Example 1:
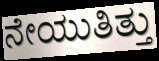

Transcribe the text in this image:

ನೇಯುತಿತ್ತು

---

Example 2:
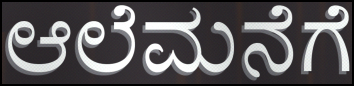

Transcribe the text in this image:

ಆಲೆಮನೆಗೆ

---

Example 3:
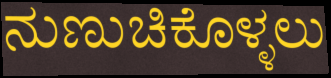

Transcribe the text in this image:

ನುಣುಚಿಕೊಳ್ಳಲು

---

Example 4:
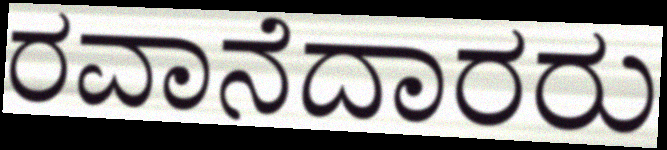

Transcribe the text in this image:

ರವಾನೆದಾರರು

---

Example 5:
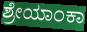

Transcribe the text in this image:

ಶ್ರೇಯಾಂಕಾ